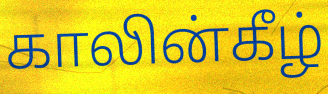
காலின்கீழ்